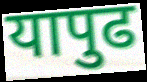
यापुढ